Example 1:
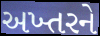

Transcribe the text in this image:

અખ્તરને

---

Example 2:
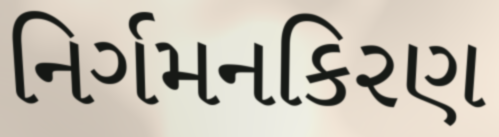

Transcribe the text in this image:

નિર્ગમનકિરણ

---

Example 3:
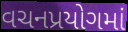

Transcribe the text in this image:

વચનપ્રયોગમાં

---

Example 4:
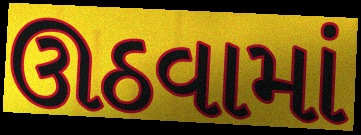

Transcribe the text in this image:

ઊઠવામાં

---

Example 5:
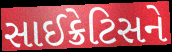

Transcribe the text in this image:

સાઈક્રેટિસને